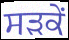
ਸੜਕੇਂ